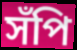
সঁপি